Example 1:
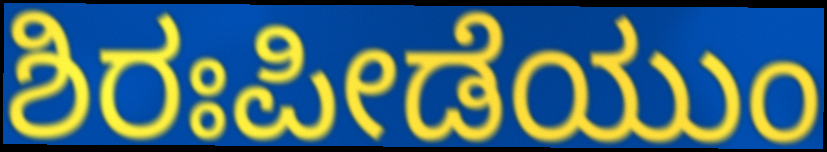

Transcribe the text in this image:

ಶಿರಃಪೀಡೆಯುಂ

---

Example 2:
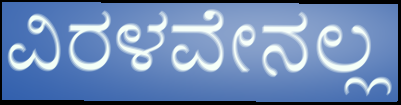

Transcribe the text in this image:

ವಿರಳವೇನಲ್ಲ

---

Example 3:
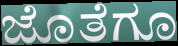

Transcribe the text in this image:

ಜೊತೆಗೂ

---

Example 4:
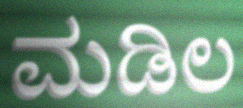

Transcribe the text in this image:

ಮಡಿಲ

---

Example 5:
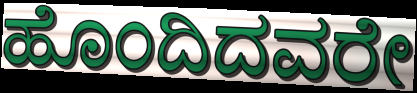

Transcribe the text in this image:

ಹೊಂದಿದವರೇ